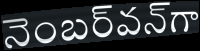
నెంబర్‌వన్‌గా